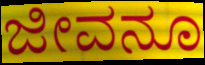
ಜೀವನೂ